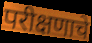
परीक्षणाचे